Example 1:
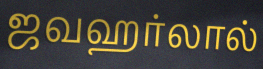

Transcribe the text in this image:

ஜவஹர்லால்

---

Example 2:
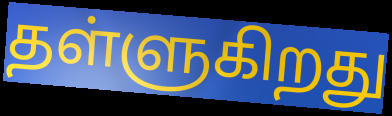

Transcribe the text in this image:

தள்ளுகிறது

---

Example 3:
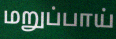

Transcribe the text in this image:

மறுப்பாய்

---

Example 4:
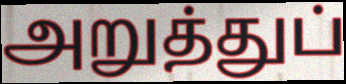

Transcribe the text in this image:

அறுத்துப்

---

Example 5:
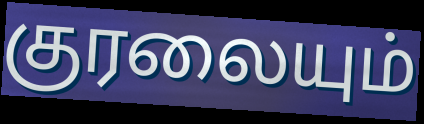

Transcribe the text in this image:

குரலையும்